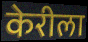
केरीला